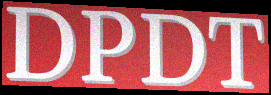
DPDT